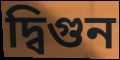
দ্বিগুন